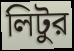
লিটুর